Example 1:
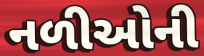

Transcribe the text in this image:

નળીઓની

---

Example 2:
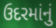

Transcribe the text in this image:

ઉદરમાંનું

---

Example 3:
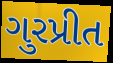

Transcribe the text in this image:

ગુરપ્રીત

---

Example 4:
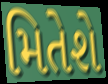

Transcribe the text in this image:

મિતેશે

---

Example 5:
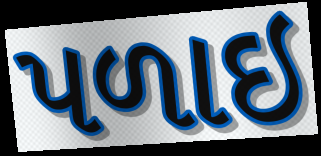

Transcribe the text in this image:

પળાઇ